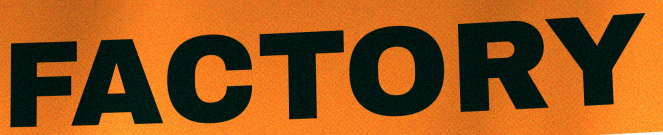
FACTORY